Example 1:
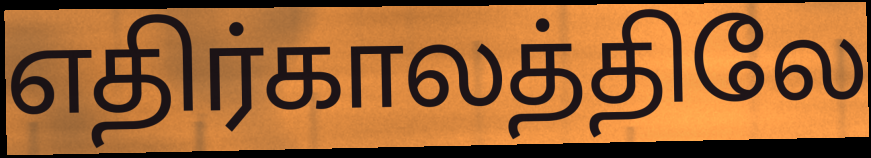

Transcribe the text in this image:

எதிர்காலத்திலே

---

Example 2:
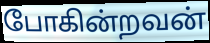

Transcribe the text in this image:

போகின்றவன்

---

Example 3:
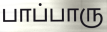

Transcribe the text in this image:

பாப்பாரு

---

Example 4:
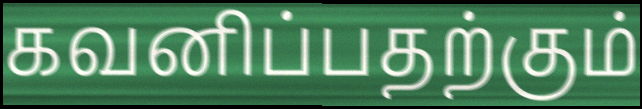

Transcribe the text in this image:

கவனிப்பதற்கும்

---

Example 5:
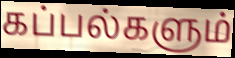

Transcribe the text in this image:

கப்பல்களும்